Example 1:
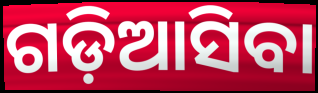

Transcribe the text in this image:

ଗଡ଼ିଆସିବା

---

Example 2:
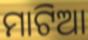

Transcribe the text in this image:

ମାଟିଆ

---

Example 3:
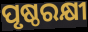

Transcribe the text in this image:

ପୃଷ୍ଠରକ୍ଷୀ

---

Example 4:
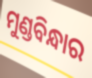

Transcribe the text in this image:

ମୁଣ୍ଡବିନ୍ଧାର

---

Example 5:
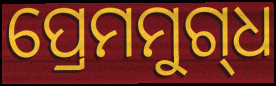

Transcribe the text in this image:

ପ୍ରେମମୁଗ୍‌ଧ